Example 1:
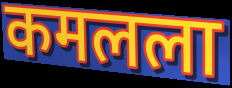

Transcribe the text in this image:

कमलला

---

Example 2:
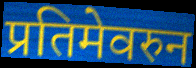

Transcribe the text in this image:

प्रतिमेवरुन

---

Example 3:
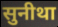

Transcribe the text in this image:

सुनीथा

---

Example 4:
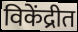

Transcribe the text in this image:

विकेंद्रीत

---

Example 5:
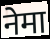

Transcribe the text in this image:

नेमा